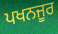
ਪਖਨਜੂਰ